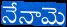
నేనామె